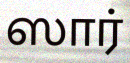
ஸார்